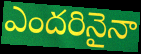
ఎందరినైనా